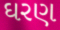
ઘરણ